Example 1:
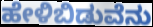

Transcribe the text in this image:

ಹೇಳಿಬಿಡುವೆನು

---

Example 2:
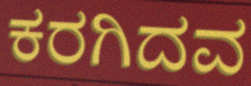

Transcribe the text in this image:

ಕರಗಿದವ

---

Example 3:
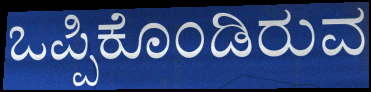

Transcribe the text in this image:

ಒಪ್ಪಿಕೊಂಡಿರುವ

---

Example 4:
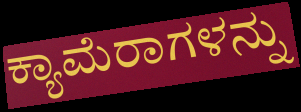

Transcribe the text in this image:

ಕ್ಯಾಮೆರಾಗಳನ್ನು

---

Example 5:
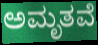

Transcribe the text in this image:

ಅಮೃತವೆ